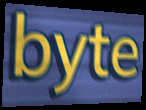
byte